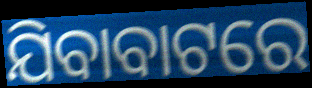
ଯିବାବାଟରେ